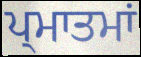
ਪ੍ਮਾਤਮਾਂ